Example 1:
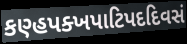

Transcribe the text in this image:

કણ્હપક્ખપાટિપદદિવસં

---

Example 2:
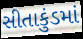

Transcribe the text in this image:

સીતાકુંડમાં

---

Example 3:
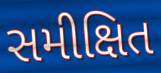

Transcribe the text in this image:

સમીક્ષિત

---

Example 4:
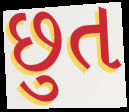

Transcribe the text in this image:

છુત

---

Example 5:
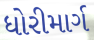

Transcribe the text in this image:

ધોરીમાર્ગ